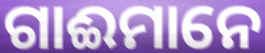
ଗାଈମାନେ